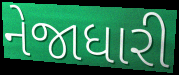
નેજાધારી